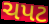
ચપટ